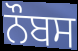
ਨੌਬਸ